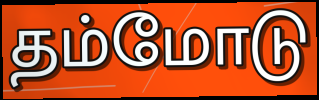
தம்மோடு